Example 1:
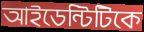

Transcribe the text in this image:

আইডেন্টিটিকে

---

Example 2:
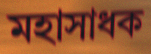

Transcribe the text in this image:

মহাসাধক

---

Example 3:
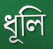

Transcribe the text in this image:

ধূলি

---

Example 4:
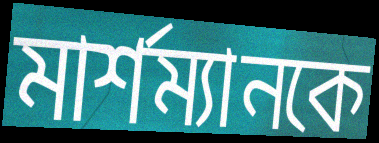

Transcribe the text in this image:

মার্শম্যানকে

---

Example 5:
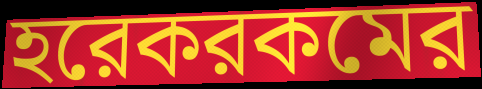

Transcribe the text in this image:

হরেকরকমের